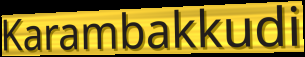
Karambakkudi